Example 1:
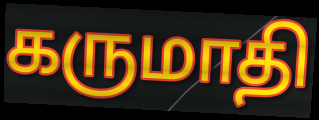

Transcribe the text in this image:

கருமாதி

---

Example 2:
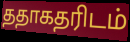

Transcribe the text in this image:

ததாகதரிடம்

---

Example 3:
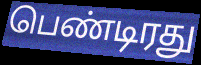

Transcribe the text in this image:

பெண்டிரது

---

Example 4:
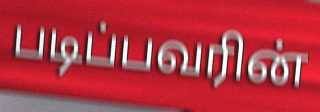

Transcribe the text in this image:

படிப்பவரின்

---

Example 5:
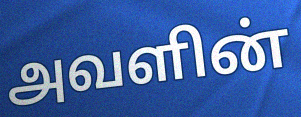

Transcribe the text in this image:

அவளின்